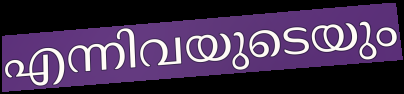
എന്നിവയുടെയും